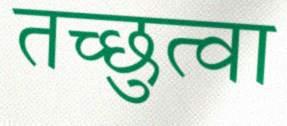
तच्छुत्वा